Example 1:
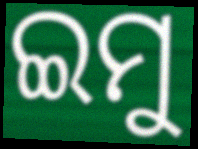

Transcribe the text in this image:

ଇମୁ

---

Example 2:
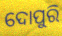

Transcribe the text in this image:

ଦୋପୁରି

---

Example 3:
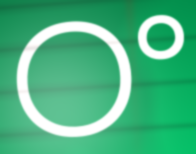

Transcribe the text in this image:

ଠଂ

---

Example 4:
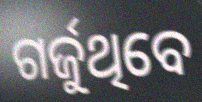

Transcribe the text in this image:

ଗର୍ଜୁଥିବେ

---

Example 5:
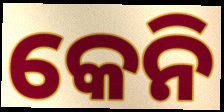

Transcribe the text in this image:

କେନି